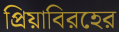
প্রিয়াবিরহের